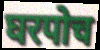
घरपोच